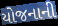
યોજનાની